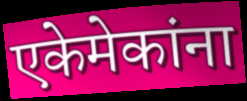
एकेमेकांना